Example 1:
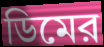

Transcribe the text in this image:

ডিমের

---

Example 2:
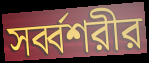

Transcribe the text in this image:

সর্ব্বশরীর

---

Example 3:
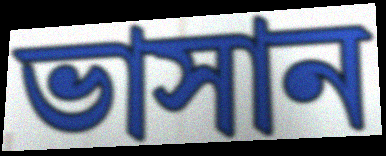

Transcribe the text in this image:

ভাসান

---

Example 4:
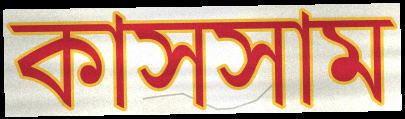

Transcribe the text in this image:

কাসসাম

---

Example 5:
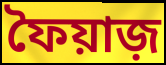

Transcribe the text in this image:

ফৈয়াজ়